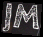
JM